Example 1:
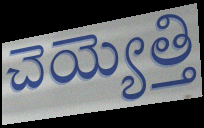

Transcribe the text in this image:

చెయ్యెత్తి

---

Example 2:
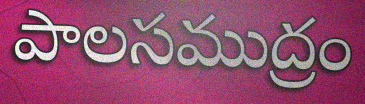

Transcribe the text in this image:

పాలసముద్రం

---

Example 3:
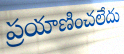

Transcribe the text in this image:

ప్రయాణించలేదు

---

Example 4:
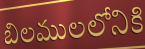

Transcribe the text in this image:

బిలములలోనికి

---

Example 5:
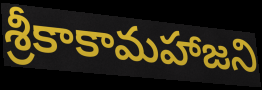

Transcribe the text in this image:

శ్రీకాకామహాజని